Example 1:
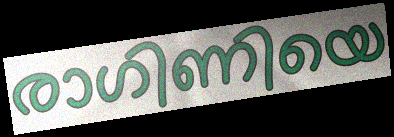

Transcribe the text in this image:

രാഗിണിയെ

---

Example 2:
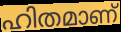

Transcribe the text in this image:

ഹിതമാണ്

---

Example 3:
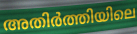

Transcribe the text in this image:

അതിർത്തിയിലെ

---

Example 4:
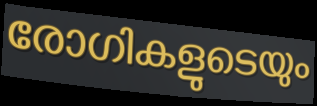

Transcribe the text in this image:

രോഗികളുടെയും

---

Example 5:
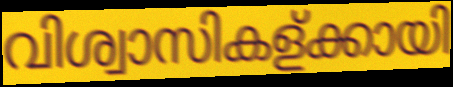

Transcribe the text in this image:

വിശ്വാസികള്ക്കായി